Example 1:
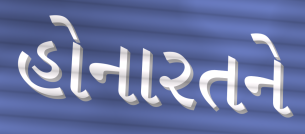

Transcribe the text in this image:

હોનારતને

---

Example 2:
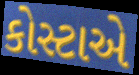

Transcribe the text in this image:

કોસ્ટાએ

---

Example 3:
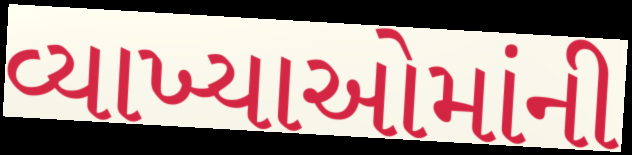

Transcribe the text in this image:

વ્યાખ્યાઓમાંની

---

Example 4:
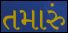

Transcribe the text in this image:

તમારું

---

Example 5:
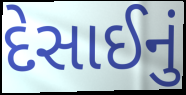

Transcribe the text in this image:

દેસાઈનું